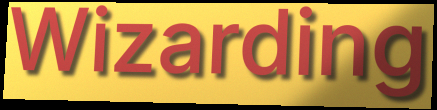
Wizarding